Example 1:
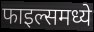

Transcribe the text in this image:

फाइल्समध्ये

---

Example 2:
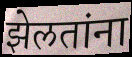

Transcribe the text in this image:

झेलतांना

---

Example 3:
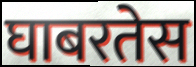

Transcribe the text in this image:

घाबरतेस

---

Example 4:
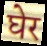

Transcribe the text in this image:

घेर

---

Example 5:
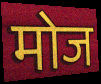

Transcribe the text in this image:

मोज